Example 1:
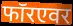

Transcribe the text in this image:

फॉरएवर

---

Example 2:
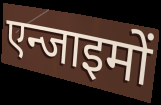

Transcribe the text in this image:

एन्जाइमों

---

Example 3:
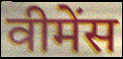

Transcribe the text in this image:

वीमेंस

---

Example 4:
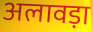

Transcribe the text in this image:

अलावड़ा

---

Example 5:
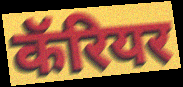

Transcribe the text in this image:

कॅरियर